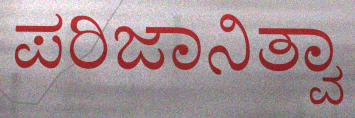
ಪರಿಜಾನಿತ್ವಾ